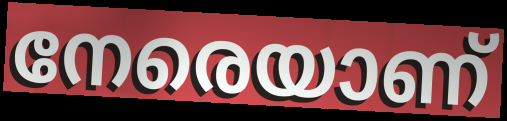
നേരെയാണ്